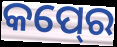
କପ୍‍ରେ